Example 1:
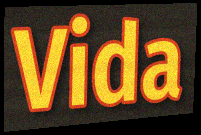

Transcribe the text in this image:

Vida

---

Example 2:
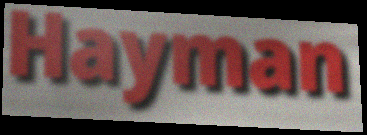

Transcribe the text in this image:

Hayman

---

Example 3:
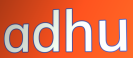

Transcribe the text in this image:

adhu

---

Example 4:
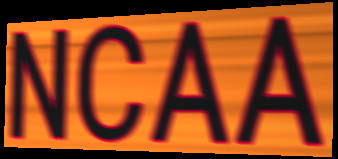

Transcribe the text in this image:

NCAA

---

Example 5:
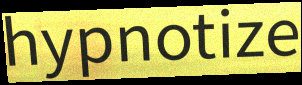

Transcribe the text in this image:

hypnotize